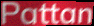
Pattan